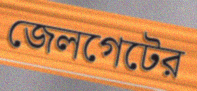
জেলগেটের